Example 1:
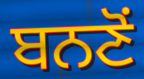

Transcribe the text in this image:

ਬਨਣੋਂ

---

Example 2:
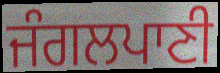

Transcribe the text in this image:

ਜੰਗਲਪਾਣੀ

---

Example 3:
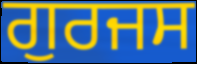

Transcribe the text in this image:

ਗੁਰਜਸ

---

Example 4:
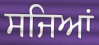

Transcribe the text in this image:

ਸਜਿਆਂ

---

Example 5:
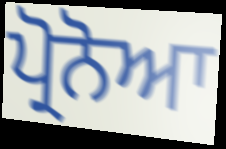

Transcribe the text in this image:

ਪ੍ਰੋਨੋਆ